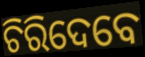
ଚିରିଦେବେ